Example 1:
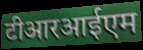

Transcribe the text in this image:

टीआरआईएम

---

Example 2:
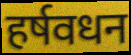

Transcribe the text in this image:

हर्षवधन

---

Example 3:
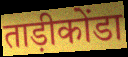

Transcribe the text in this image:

ताड़ीकोंडा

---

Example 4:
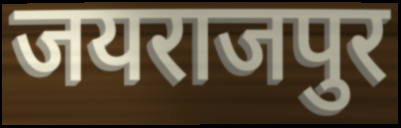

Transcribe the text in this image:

जयराजपुर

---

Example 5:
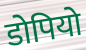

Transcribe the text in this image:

डोपियो